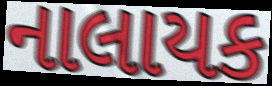
નાલાયક